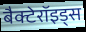
बैक्टेरॉइड्स